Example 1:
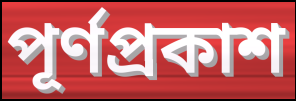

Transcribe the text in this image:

পূর্ণপ্রকাশ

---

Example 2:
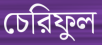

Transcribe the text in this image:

চেরিফুল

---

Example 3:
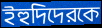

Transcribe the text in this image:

ইহুদিদেরকে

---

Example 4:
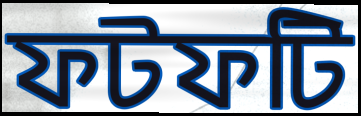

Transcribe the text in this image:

ফটফটি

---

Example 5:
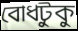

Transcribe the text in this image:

বোধটুকু